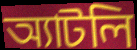
অ্যাটলি